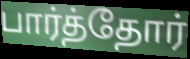
பார்த்தோர்